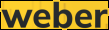
weber